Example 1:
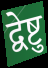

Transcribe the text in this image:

द्वेष्टु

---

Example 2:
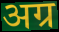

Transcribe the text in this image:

अग्र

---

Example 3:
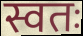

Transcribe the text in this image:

स्वतः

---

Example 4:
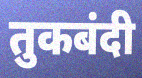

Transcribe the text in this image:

तुकबंदी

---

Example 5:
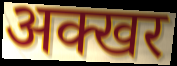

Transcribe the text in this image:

अक्खर